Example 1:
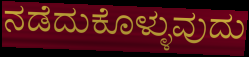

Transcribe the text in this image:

ನಡೆದುಕೊಳ್ಳುವುದು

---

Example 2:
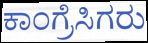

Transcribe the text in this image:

ಕಾಂಗ್ರೆಸಿಗರು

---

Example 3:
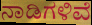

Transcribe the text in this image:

ನಾಡಿಗಳಿವೆ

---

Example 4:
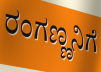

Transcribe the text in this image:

ರಂಗಣ್ಣನಿಗೆ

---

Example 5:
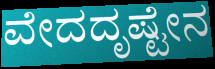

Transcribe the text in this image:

ವೇದದೃಷ್ಟೇನ